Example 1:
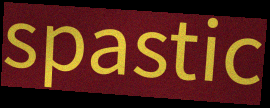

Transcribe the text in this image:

spastic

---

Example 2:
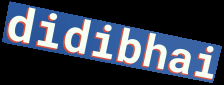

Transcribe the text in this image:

didibhai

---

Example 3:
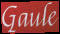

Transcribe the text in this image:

Gaule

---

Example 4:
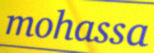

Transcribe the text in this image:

mohassa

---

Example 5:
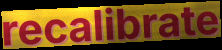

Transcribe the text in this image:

recalibrate